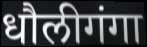
धौलीगंगा